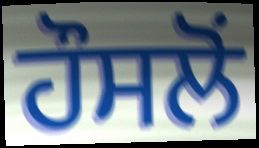
ਹੌਸਲੋਂ